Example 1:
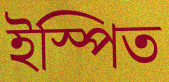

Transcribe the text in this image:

ইস্পিত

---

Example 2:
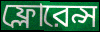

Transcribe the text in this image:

ফ্লোরেন্স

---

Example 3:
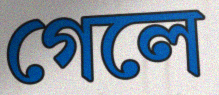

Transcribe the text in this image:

গেলে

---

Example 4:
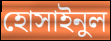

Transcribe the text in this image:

হোসাইনুল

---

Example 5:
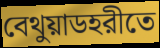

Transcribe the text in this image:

বেথুয়াডহরীতে